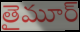
తైమూర్